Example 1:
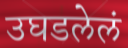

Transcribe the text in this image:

उघडलेलं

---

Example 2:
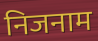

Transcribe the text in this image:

निजनाम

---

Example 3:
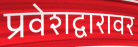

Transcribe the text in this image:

प्रवेशद्वारावर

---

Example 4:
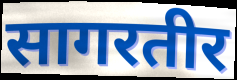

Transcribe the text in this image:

सागरतीर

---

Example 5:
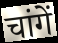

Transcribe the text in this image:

चांगें